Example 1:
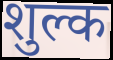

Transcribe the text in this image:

शुल्क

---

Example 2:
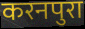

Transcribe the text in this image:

करनपुरा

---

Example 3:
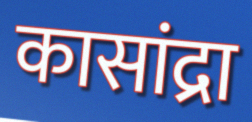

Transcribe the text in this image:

कासांद्रा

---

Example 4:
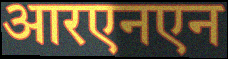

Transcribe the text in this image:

आरएनएन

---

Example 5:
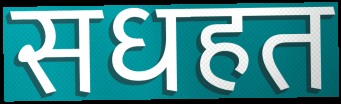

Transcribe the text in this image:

सधहत